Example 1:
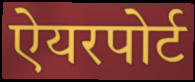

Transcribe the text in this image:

ऐयरपोर्ट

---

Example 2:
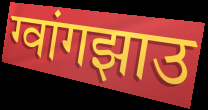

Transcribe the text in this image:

ग्वांगझाउ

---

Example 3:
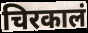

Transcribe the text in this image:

चिरकालं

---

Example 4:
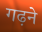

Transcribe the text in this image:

गढ़ने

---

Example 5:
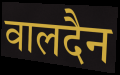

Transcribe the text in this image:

वालदैन